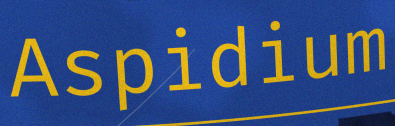
Aspidium